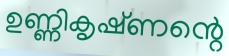
ഉണ്ണികൃഷ്‌ണന്റെ